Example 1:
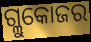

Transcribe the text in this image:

ଗ୍ଲୁକୋଜର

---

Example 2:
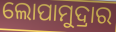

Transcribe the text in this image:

ଲୋପାମୁଦ୍ରାର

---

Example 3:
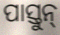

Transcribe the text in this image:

ପାସ୍ତୁନ୍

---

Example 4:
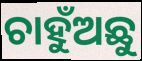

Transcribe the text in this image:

ଚାହୁଁଅଛୁ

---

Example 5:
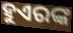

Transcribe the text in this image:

ହୁଏରଙ୍କ